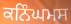
ਕਨਿੰਘਮਸ